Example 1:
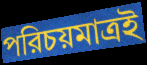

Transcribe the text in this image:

পরিচয়মাত্রই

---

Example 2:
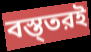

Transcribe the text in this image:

বস্ত্তরই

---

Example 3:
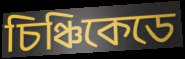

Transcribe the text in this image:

চিঞ্চিকেডে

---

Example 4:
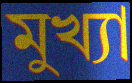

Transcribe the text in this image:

মুখ্যা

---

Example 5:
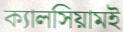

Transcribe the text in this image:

ক্যালসিয়ামই